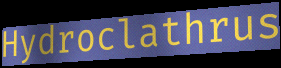
Hydroclathrus